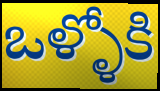
ఒళ్ళోకి